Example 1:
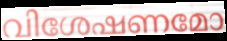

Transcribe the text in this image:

വിശേഷണമോ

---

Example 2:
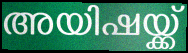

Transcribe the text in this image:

അയിഷയ്ക്ക്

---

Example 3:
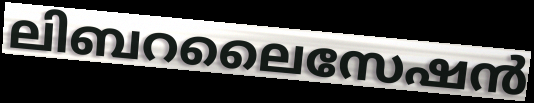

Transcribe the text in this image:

ലിബറലൈസേഷൻ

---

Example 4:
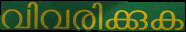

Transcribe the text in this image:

വിവരിക്കുക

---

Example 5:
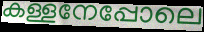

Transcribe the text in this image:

കള്ളനേപ്പോലെ